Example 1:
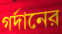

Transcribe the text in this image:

গর্দানের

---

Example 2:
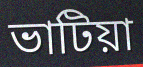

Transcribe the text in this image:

ভাটিয়া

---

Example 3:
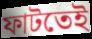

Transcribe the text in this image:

ফাটতেই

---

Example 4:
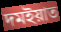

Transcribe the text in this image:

দমইয়াত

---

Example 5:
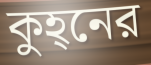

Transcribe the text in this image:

কুহ্‌নের